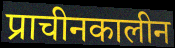
प्राचीनकालीन